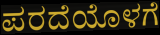
ಪರದೆಯೊಳಗೆ